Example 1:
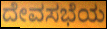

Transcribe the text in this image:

ದೇವಸಭೆಯ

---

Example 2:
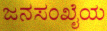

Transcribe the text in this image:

ಜನಸಂಖೈಯ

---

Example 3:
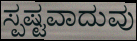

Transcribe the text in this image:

ಸ್ಪಷ್ಟವಾದುವು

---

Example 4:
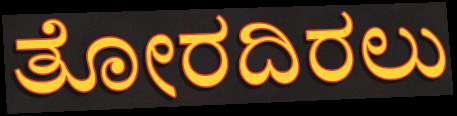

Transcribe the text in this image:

ತೋರದಿರಲು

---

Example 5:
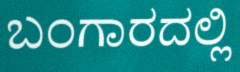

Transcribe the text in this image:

ಬಂಗಾರದಲ್ಲಿ